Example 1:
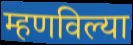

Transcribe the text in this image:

म्हणविल्या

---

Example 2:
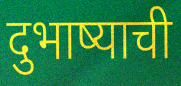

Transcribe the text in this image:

दुभाष्याची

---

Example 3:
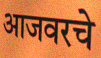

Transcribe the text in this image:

आजवरचे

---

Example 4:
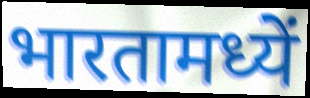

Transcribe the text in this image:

भारतामध्यें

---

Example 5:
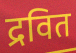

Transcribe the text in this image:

द्रवित